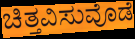
ಚಿತ್ತವಿಸುವೊಡೆ